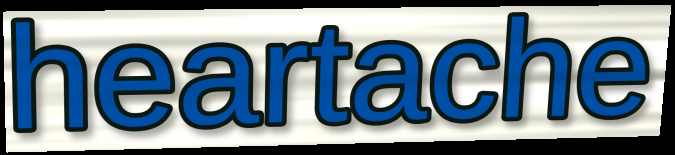
heartache